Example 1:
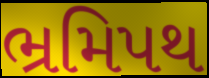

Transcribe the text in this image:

ભ્રમિપથ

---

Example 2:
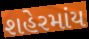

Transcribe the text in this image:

શહેરમાંય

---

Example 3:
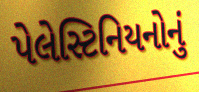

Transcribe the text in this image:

પેલેસ્ટિનિયનોનું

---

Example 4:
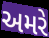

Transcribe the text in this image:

અમરે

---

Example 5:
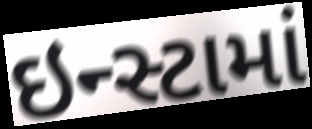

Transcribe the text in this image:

ઇન્સ્ટામાં